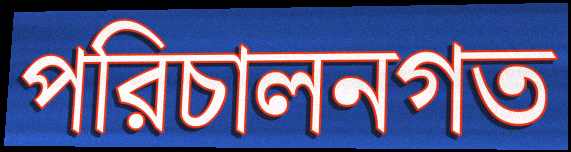
পরিচালনগত